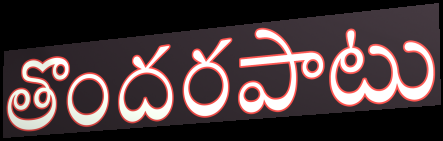
తొందరపాటు